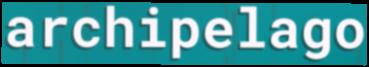
archipelago